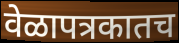
वेळापत्रकातच